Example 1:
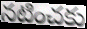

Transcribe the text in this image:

నటించకు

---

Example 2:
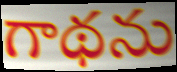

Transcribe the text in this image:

గాథను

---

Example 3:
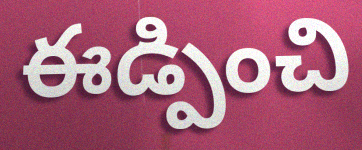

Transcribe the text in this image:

ఈడ్పించి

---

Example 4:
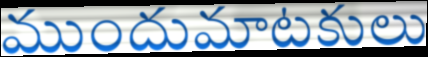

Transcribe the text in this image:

ముందుమాటకులు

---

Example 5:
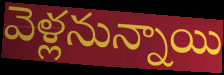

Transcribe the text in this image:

వెళ్లనున్నాయి